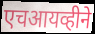
एचआयव्हीने